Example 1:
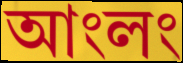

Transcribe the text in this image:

আংলং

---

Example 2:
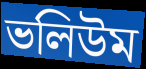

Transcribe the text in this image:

ভলিউম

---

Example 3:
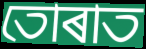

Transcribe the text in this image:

তোৰাত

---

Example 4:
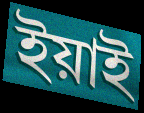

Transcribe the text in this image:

ইয়াই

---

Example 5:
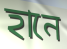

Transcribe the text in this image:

হানে